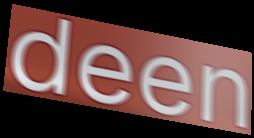
deen